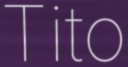
Tito